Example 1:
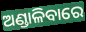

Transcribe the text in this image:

ଅଣ୍ଡାଳିବାରେ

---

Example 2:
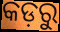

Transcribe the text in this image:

କଡ଼ରୁ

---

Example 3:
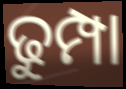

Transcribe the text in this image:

ଢୁମ୍ପା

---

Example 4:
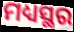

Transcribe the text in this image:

ମଧ୍ୟସ୍ଥର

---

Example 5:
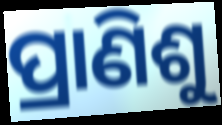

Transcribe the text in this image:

ପ୍ରାଣିଶୁ